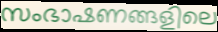
സംഭാഷണങ്ങളിലെ